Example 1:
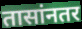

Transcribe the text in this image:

तासांनतर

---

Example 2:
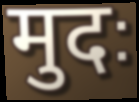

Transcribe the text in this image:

मुदः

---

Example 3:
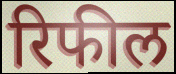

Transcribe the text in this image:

रिफील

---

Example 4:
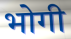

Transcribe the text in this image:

भोगी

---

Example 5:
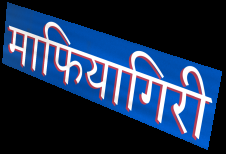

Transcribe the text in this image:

माफियागिरी